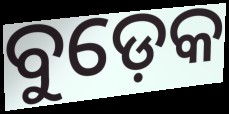
ବୁଡ଼େକ